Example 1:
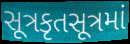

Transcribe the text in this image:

સૂત્રકૃતસૂત્રમાં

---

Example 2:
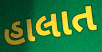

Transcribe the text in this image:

હાલાત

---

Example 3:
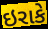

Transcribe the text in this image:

ઇરાકે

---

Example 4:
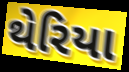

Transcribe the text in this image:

થેરિયા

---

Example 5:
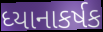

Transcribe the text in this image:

ધ્યાનાકર્ષક